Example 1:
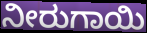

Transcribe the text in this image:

ನೀರುಗಾಯಿ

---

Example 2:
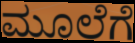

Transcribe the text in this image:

ಮೂಲೆಗೆ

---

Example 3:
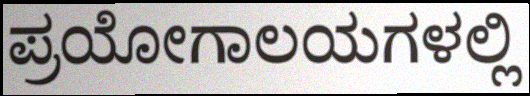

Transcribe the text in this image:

ಪ್ರಯೋಗಾಲಯಗಳಲ್ಲಿ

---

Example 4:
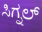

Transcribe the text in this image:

ಸಿಗ್ನಲ್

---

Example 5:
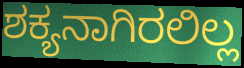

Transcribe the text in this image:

ಶಕ್ಯನಾಗಿರಲಿಲ್ಲ